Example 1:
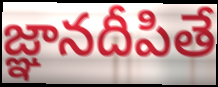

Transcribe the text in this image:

జ్ఞానదీపితే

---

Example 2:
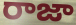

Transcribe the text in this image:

రాజా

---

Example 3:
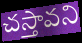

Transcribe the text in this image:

చస్తావని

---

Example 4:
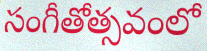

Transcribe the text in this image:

సంగీతోత్సవంలో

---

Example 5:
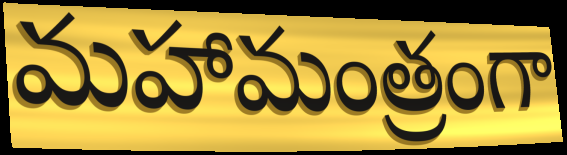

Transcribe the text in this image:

మహామంత్రంగా